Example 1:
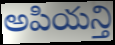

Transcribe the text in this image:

అపియన్తి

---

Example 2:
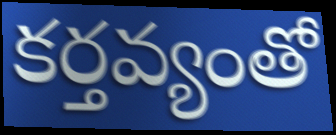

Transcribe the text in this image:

కర్తవ్యంతో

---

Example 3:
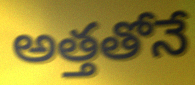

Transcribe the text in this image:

అత్తతోనే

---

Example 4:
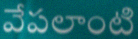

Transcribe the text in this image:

వేపలాంటి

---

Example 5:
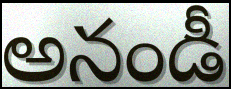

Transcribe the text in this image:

అనండీ